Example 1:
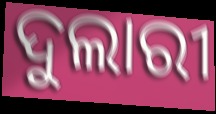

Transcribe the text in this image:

ଦୁଲାରୀ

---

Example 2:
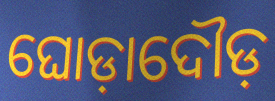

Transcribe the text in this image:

ଘୋଡ଼ାଦୌଡ଼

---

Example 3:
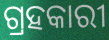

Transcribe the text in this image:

ଗ୍ରହକାରୀ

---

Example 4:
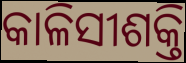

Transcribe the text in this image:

କାଳିସୀଶକ୍ତି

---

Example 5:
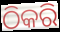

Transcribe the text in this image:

ଠିକରି